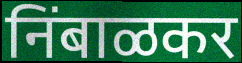
निंबाळकर